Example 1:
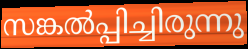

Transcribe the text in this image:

സങ്കൽപ്പിച്ചിരുന്നു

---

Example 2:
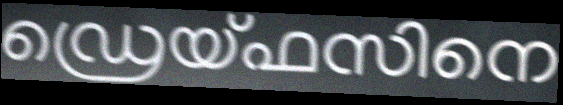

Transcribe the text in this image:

ഡ്രെയ്ഫസിനെ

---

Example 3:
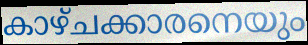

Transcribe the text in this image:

കാഴ്ചക്കാരനെയും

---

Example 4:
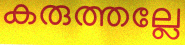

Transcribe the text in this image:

കരുത്തല്ലേ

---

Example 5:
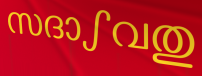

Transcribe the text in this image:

സദാഽവതു